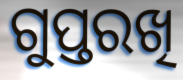
ଗୁପ୍ତରଖି